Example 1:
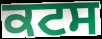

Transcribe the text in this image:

ਕਟਸ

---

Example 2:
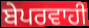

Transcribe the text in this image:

ਬੇਪਰਵਾਹੀ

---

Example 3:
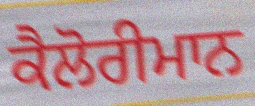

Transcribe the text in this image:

ਕੈਲੋਰੀਮਾਨ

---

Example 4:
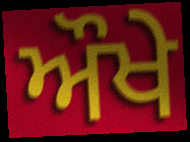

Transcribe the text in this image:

ਔਖੇ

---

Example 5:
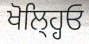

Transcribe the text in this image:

ਖੋਲ੍ਹ੍ਹਿਓ